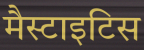
मैस्टाइटिस